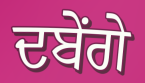
ਦਬੇਂਗੇ